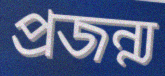
প্ৰজন্ম